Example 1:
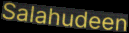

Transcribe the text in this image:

Salahudeen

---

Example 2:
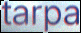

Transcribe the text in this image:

tarpa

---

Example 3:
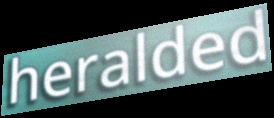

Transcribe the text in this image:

heralded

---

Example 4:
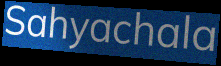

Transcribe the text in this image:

Sahyachala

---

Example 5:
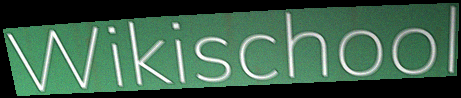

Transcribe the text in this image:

Wikischool